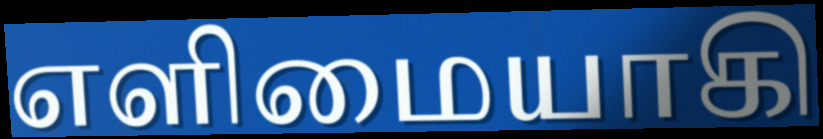
எளிமையாகி